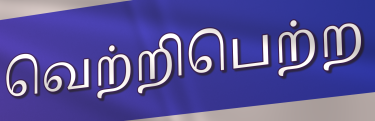
வெற்றிபெற்ற